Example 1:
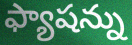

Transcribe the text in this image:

ఫ్యాషన్ను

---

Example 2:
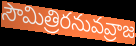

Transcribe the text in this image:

సౌమిత్రిరనువవ్రాజ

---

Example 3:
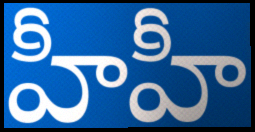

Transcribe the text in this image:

హీహీ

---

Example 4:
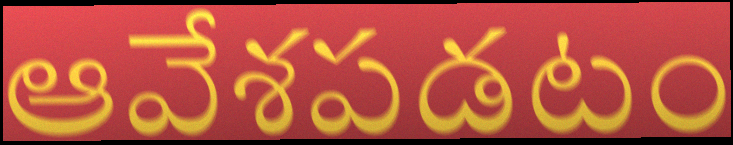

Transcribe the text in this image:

ఆవేశపడటం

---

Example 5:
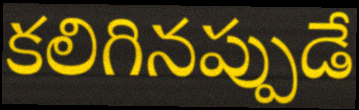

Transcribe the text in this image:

కలిగినప్పుడే